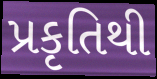
પ્રકૃતિથી